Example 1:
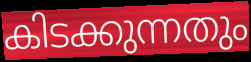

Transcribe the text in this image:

കിടക്കുന്നതും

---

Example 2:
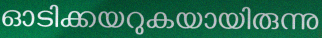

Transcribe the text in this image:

ഓടിക്കയറുകയായിരുന്നു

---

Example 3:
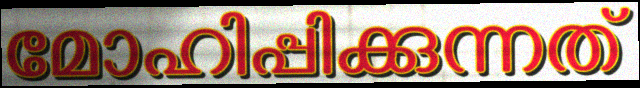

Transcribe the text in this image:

മോഹിപ്പിക്കുന്നത്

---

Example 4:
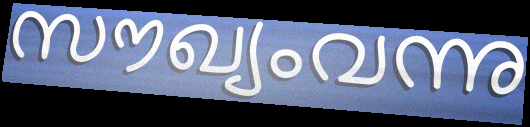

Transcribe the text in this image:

സൗഖ്യംവന്നു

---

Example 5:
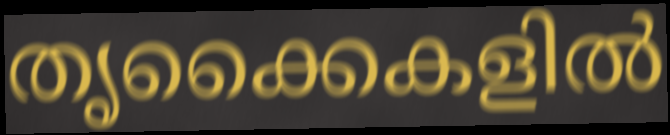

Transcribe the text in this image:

തൃക്കൈകളിൽ